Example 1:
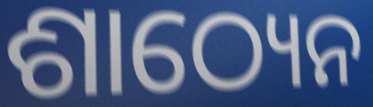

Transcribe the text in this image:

ଶାଠ୍ୟେନ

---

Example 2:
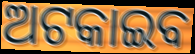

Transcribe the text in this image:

ଅଟକାଇବ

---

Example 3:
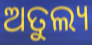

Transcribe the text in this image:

ଅତୁଲ୍ୟ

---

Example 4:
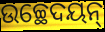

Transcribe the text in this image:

ଉଚ୍ଛେଦୟନ୍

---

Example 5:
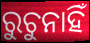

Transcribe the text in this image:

ରୁଚୁନାହିଁ